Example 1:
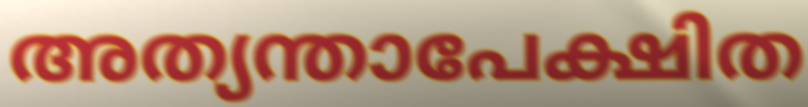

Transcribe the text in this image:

അത്യന്താപേക്ഷിത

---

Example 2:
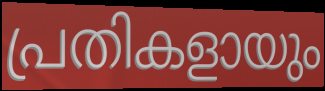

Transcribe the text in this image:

പ്രതികളായും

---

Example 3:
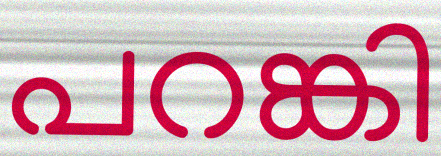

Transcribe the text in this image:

പറങ്കി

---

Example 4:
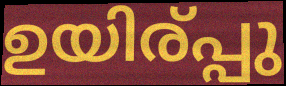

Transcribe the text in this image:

ഉയിര്പ്പു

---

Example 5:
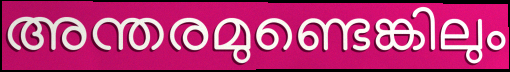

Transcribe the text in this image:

അന്തരമുണ്ടെങ്കിലും